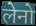
लेनो